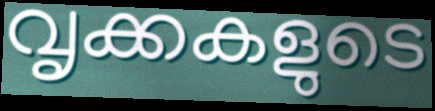
വൃക്കകളുടെ